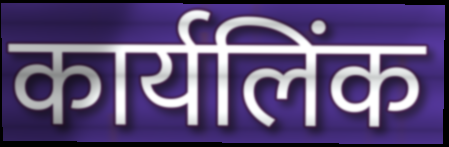
कार्यलिंक